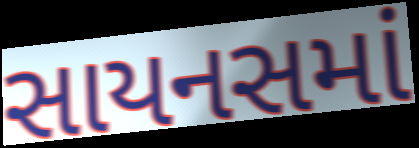
સાયનસમાં